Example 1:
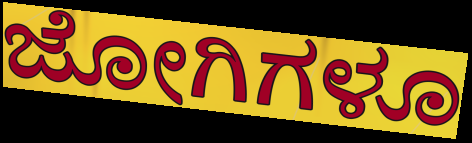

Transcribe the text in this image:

ಜೋಗಿಗಳೂ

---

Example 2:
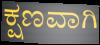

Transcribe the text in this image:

ಕ್ಷಣವಾಗಿ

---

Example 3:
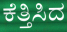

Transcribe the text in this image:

ಕೆತ್ತಿಸಿದ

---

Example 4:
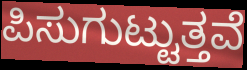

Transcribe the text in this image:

ಪಿಸುಗುಟ್ಟುತ್ತವೆ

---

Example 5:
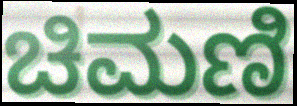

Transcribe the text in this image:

ಚಿಮಣಿ